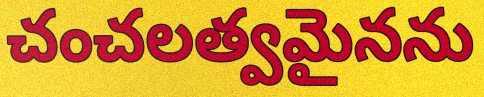
చంచలత్వమైనను